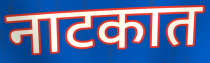
नाटकात